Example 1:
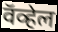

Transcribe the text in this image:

वॅव्हेल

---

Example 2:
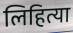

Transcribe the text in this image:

लिहित्या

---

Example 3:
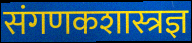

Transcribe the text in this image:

संगणकशास्त्रज्ञ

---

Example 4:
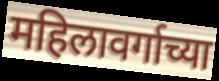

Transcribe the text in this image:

महिलावर्गाच्या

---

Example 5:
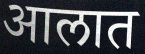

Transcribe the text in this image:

आलात